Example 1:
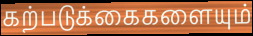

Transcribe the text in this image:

கற்படுக்கைகளையும்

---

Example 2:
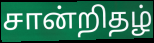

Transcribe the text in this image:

சான்றிதழ்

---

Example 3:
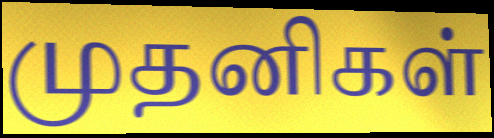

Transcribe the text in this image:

முதனிகள்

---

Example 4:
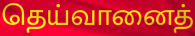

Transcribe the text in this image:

தெய்வானைத்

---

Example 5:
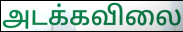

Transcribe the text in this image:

அடக்கவிலை